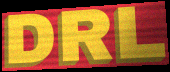
DRL